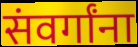
संवर्गांना